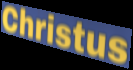
Christus